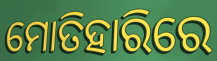
ମୋତିହାରିରେ